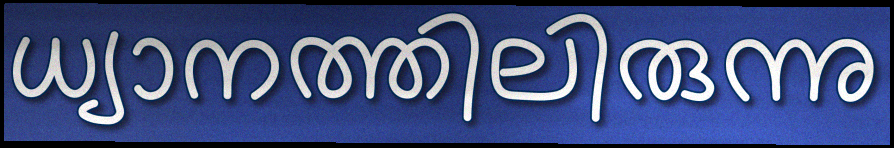
ധ്യാനത്തിലിരുന്നു